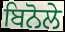
ਬਿਨੋਲੇ